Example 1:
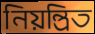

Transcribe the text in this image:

নিয়ন্ত্রিত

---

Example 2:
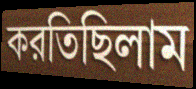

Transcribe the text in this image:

করতিছিলাম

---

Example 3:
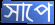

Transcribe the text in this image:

সাপে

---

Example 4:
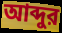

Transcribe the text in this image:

আব্দুর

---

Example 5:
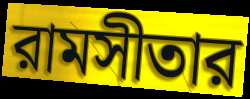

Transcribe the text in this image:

রামসীতার